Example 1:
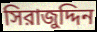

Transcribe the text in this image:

সিরাজুদ্দিন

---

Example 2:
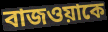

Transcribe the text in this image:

বাজওয়াকে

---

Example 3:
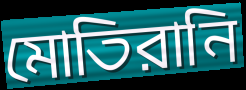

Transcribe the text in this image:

মোতিরানি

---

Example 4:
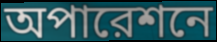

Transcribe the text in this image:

অপারেশনে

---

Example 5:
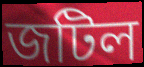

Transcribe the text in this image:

জটিল